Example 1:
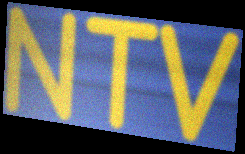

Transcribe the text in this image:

NTV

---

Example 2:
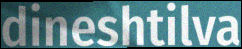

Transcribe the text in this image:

dineshtilva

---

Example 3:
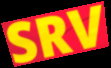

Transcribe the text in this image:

SRV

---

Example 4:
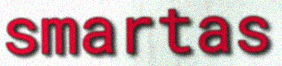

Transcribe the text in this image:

smartas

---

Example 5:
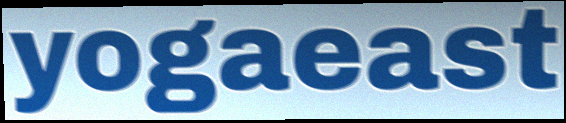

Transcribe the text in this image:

yogaeast